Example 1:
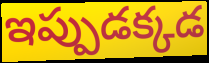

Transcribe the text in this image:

ఇప్పుడక్కడ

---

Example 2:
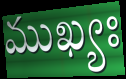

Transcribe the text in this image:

ముఖ్యః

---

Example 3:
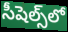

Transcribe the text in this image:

సీషెల్స్‌లో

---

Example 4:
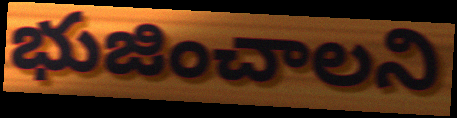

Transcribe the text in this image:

భుజించాలని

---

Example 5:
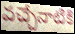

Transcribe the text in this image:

వచ్చేనాటికి